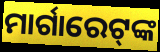
ମାର୍ଗାରେଟ୍‍ଙ୍କ